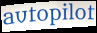
autopilot